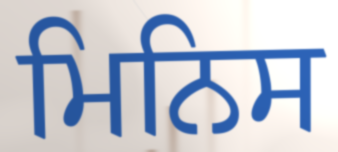
ਮਿਨਿਸ